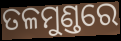
ତଳମୁଣ୍ଡରେ